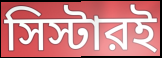
সিস্টারই